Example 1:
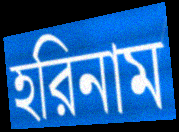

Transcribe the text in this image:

হরিনাম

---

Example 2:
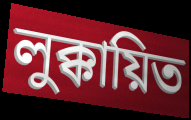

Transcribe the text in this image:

লুক্কায়িত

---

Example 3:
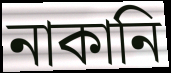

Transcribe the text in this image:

নাকানি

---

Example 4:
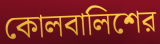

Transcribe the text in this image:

কোলবালিশের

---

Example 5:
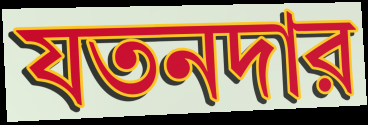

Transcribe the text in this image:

যতনদার